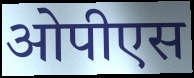
ओपीएस